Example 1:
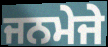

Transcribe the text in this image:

ਜਨਮੇਜੇ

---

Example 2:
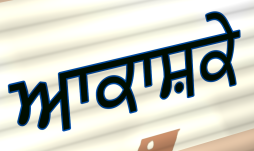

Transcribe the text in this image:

ਆਕਾਸ਼ਕੇ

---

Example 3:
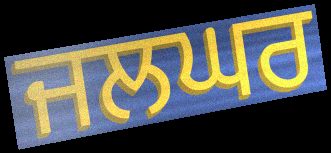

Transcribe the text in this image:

ਜਲਘਰ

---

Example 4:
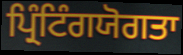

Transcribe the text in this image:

ਪ੍ਰਿੰਟਿੰਗਯੋਗਤਾ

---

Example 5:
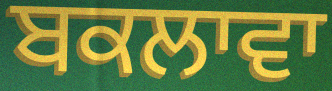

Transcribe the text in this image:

ਬਕਲਾਵਾ